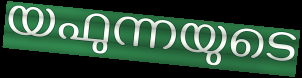
യഫുന്നയുടെ